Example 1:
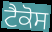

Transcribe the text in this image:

ਟੈਕੋਸ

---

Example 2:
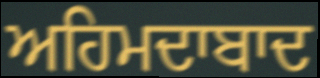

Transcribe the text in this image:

ਅਹਿਮਦਾਬਾਦ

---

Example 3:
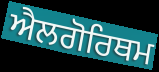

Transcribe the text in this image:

ਐਲਗੋਰਿਥਮ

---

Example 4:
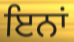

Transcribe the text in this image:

ਇਨਾਂ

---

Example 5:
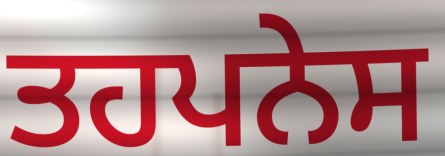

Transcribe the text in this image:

ਤਹਪਨੇਸ